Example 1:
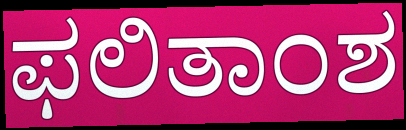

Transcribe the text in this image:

ಫಲಿತಾಂಶ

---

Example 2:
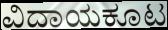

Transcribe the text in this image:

ವಿದಾಯಕೂಟ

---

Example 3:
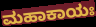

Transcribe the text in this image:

ಮಹಾಕಾಯಃ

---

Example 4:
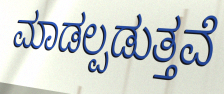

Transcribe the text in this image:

ಮಾಡಲ್ಪಡುತ್ತವೆ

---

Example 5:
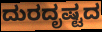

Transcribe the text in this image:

ದುರದೃಷ್ಟದ